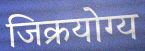
जिक्रयोग्य